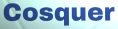
Cosquer